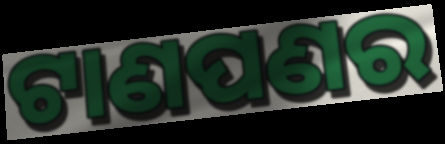
ଟାଣପଣର